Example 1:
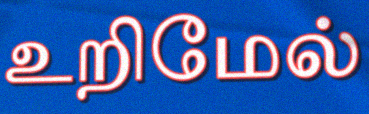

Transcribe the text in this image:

உறிமேல்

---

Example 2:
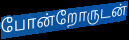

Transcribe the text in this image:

போன்றோருடன்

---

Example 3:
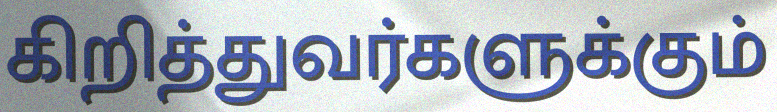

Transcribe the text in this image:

கிறித்துவர்களுக்கும்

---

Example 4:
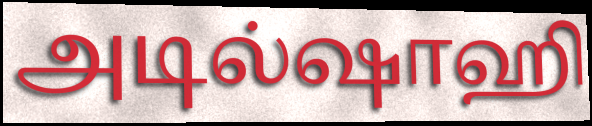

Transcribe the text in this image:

அடில்ஷாஹி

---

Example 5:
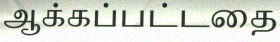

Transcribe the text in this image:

ஆக்கப்பட்டதை